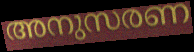
അനുസരണ